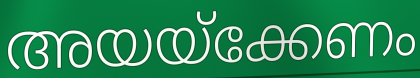
അയയ്ക്കേണം